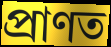
প্ৰাণত